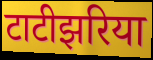
टाटीझरिया